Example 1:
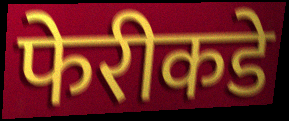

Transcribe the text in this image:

फेरीकडे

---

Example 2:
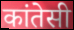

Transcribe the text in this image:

कांतेसी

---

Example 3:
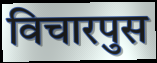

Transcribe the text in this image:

विचारपुस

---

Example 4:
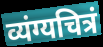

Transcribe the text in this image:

व्यंग्यचित्रं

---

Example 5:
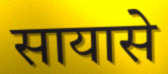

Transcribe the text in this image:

सायासे